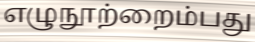
எழுநூற்றைம்பது